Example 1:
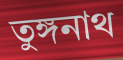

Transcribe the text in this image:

তুঙ্গনাথ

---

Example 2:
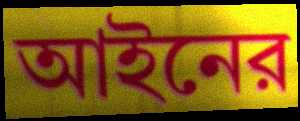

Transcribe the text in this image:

আইনের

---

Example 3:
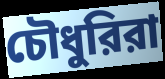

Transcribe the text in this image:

চৌধুরিরা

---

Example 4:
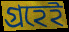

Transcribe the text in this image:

গ্রহেই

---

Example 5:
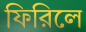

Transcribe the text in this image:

ফিরিলে